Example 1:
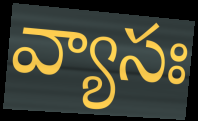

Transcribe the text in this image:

వ్యాసః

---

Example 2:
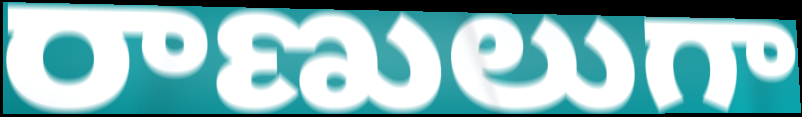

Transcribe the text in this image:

రాణులుగా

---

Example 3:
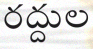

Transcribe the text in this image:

రద్దుల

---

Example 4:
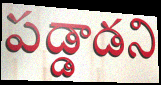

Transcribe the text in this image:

పడ్డాడని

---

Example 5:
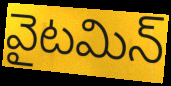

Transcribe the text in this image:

వైటమిన్